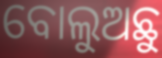
ବୋଲୁଅଛୁ